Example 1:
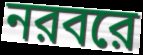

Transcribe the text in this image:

নরবরে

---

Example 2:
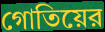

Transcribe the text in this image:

গোতিয়ের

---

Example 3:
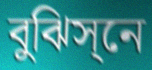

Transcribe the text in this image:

বুঝিস্‌নে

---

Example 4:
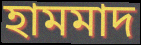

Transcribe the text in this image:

হামমাদ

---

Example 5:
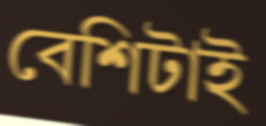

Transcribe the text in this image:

বেশিটাই